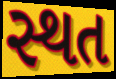
સ્થત